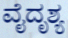
ವೈದೃಶ್ಯ